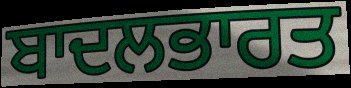
ਬਾਦਲਭਾਰਤ